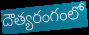
దౌత్యరంగంలో